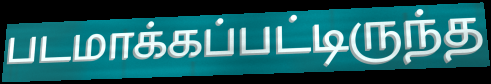
படமாக்கப்பட்டிருந்த